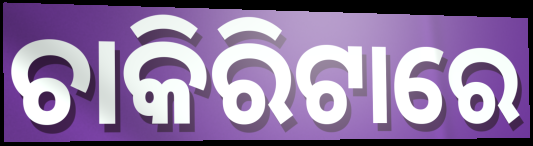
ଚାକିରିଟାରେ